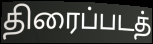
திரைப்படத்